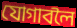
যোগাবলৈ